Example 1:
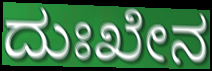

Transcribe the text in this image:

ದುಃಖೇನ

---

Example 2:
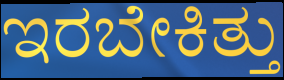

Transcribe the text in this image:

ಇರಬೇಕಿತ್ತು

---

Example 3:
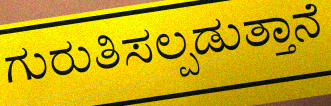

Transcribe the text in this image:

ಗುರುತಿಸಲ್ಪಡುತ್ತಾನೆ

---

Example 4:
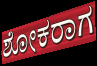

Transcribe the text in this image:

ಶೋಕರಾಗ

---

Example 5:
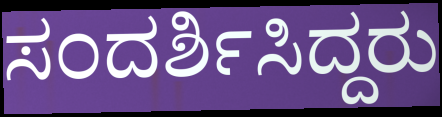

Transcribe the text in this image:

ಸಂದರ್ಶಿಸಿದ್ದರು